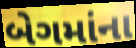
બેગમાંના